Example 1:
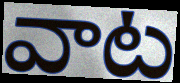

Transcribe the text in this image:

వాట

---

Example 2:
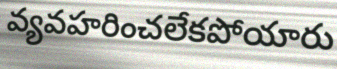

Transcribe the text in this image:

వ్యవహరించలేకపోయారు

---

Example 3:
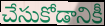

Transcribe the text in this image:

చేసుకోడానికీ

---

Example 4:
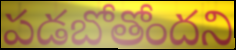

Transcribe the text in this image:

పడబోతోందని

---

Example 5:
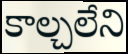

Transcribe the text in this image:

కాల్చలేని